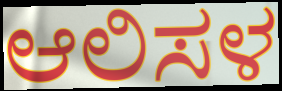
ಆಲಿಸಳ